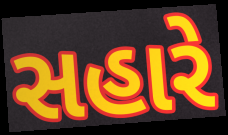
સહારે